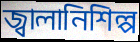
জ্বালানিশিল্প